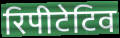
रिपीटेटिव